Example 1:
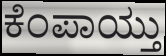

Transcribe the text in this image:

ಕೆಂಪಾಯ್ತು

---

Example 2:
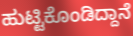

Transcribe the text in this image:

ಹುಟ್ಟಿಕೊಂಡಿದ್ದಾನೆ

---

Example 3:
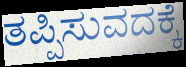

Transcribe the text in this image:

ತಪ್ಪಿಸುವದಕ್ಕೆ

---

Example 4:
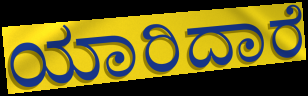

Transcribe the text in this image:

ಯಾರಿದಾರೆ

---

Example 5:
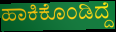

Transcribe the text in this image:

ಹಾಕಿಕೊಂಡಿದ್ದೆ